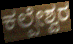
ಕಲ್ಪೇಶ್ವರ